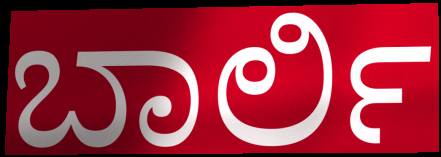
ಬಾರ್ಲಿ